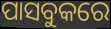
ପାସବୁକରେ